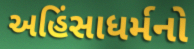
અહિંસાધર્મનો